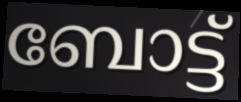
ബോട്ട്